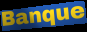
Banque